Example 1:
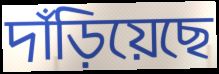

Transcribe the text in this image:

দাঁড়িয়েছে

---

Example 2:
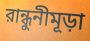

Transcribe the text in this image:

রান্ধুনীমূড়া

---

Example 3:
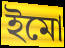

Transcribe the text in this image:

ইমো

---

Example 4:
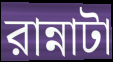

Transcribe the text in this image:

রান্নাটা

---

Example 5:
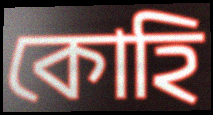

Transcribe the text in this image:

কোহি